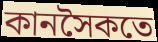
কানসৈকতে